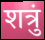
शत्रुं